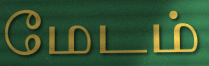
மேடம்